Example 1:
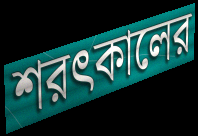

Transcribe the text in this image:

শরৎকালের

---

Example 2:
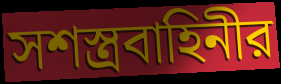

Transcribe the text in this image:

সশস্ত্রবাহিনীর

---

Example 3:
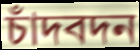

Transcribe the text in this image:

চাঁদবদন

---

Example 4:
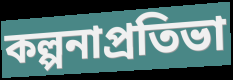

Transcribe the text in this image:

কল্পনাপ্রতিভা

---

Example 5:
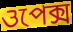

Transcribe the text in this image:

ওপেক্স